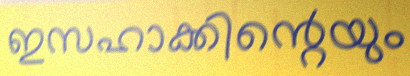
ഇസഹാക്കിന്റെയും